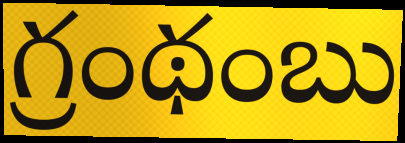
గ్రంథంబు